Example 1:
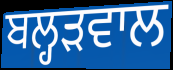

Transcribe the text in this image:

ਬਲ੍ਹੜਵਾਲ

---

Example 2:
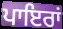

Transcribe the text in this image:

ਪਾਇਰਾਂ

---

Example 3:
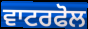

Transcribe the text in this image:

ਵਾਟਰਫੋਲ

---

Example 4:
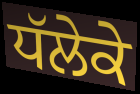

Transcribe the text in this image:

ਧੱਲੇਕੇ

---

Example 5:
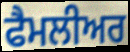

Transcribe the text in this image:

ਫੈਮਲੀਅਰ